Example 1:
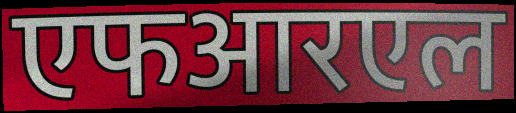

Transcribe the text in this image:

एफआरएल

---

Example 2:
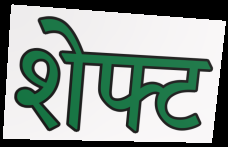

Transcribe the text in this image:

शेफ्ट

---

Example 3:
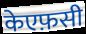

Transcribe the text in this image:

केएफ़सी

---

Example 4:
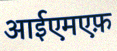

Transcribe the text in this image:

आईएमएफ़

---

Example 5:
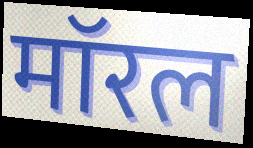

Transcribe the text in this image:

मॉरल